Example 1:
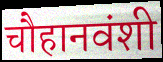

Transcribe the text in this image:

चौहानवंशी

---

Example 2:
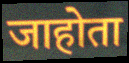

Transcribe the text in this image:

जाहोता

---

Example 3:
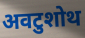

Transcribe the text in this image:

अवटुशोथ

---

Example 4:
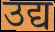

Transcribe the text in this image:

उद्य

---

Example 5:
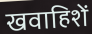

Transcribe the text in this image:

खवाहिशें